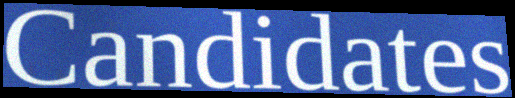
Candidates